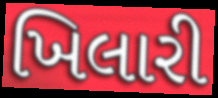
ખિલારી